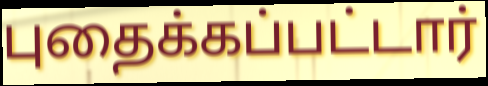
புதைக்கப்பட்டார்